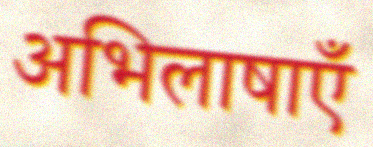
अभिलाषाएँ